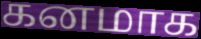
கனமாக